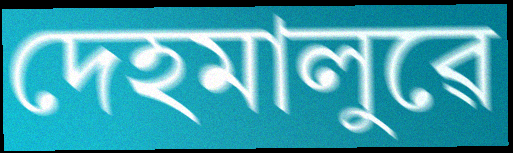
দেহমালুৱে